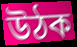
উঠক